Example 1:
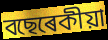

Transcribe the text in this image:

বছেৰেকীয়া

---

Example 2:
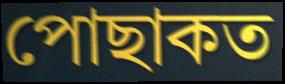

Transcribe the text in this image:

পোছাকত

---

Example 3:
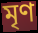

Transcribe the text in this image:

মৃণ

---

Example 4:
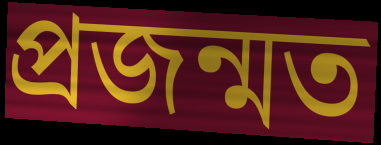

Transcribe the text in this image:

প্ৰজন্মত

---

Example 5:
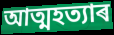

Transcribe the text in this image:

আত্মহত্যাৰ